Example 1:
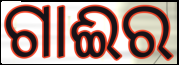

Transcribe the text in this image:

ଗାଈର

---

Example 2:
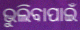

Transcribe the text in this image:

ଭୁଲିବାପାଇଁ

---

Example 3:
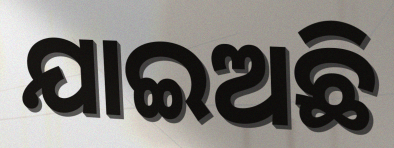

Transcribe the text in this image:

ଯାଇଅଛି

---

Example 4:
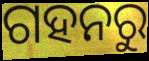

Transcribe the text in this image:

ଗହନରୁ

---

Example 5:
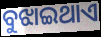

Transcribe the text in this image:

ବୁଝାଇଥାଏ